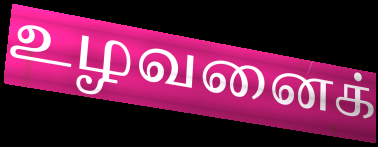
உழவனைக்